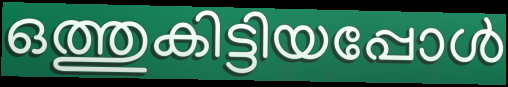
ഒത്തുകിട്ടിയപ്പോൾ